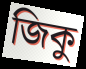
জিকু